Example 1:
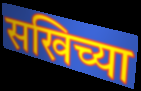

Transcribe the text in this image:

सखिच्या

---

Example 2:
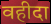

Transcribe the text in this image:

वहीदा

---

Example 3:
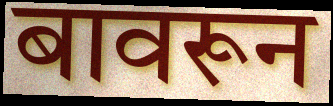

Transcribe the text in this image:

बावरून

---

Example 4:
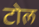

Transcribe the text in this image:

टोल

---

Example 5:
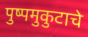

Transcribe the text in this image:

पुष्पमुकुटाचे